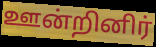
ஊன்றினிர்